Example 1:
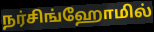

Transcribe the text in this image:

நர்சிங்ஹோமில்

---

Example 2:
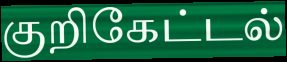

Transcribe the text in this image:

குறிகேட்டல்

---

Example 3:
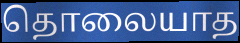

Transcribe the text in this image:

தொலையாத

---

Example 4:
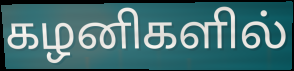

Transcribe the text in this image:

கழனிகளில்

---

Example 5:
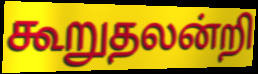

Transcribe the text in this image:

கூறுதலன்றி